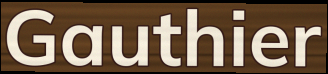
Gauthier